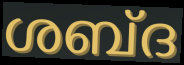
ശബ്‌ദ